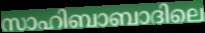
സാഹിബാബാദിലെ